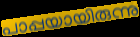
പാപ്പയായിരുന്നു